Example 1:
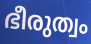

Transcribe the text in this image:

ഭീരുത്വം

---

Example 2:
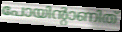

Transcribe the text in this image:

പോയിന്റാണിത്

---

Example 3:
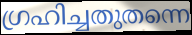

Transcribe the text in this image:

ഗ്രഹിച്ചതുതന്നെ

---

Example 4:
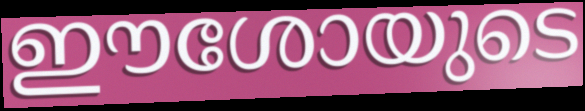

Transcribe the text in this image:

ഈശോയുടെ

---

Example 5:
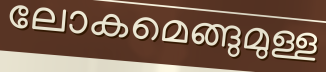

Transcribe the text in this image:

ലോകമെങ്ങുമുള്ള